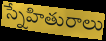
స్నేహితురాలు